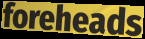
foreheads